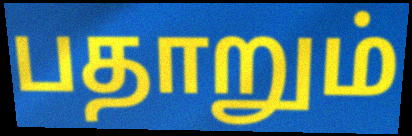
பதாறும்